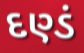
દણ્ડં